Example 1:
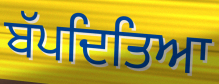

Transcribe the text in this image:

ਬੱਪਦਿਤਿਆ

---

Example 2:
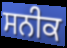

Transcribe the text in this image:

ਸਨੀਕ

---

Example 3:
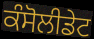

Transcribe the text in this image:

ਕੰਸੋਲੀਡੇਟ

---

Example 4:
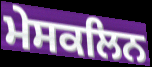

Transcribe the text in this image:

ਮੇਸਕਲਿਨ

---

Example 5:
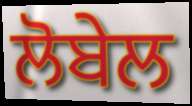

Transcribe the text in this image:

ਲੋਬੇਲ